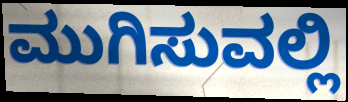
ಮುಗಿಸುವಲ್ಲಿ